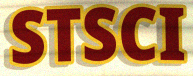
STSCI